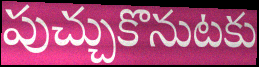
పుచ్చుకొనుటకు